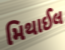
મિથાઈલ